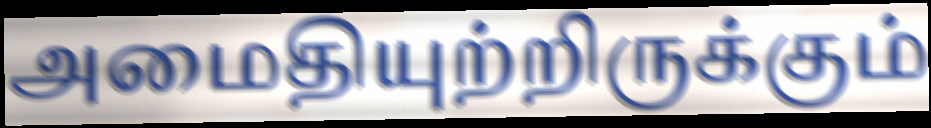
அமைதியுற்றிருக்கும்